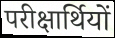
परीक्षार्थियों